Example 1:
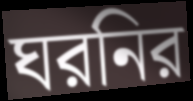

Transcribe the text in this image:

ঘরনির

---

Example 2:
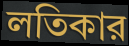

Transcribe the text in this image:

লতিকার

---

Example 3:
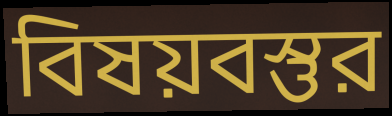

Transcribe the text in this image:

বিষয়বস্তুর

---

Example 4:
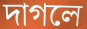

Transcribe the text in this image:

দাগলে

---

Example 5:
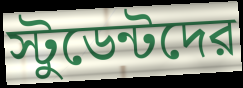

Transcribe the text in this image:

স্টুডেন্টদের